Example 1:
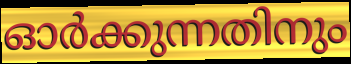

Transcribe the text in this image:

ഓർക്കുന്നതിനും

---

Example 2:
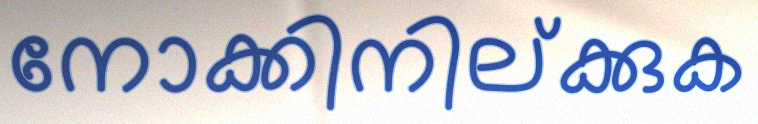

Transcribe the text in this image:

നോക്കിനില്ക്കുക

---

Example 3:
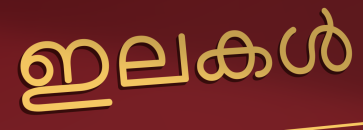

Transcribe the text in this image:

ഇലകൾ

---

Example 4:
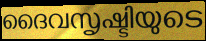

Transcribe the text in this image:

ദൈവസൃഷ്ടിയുടെ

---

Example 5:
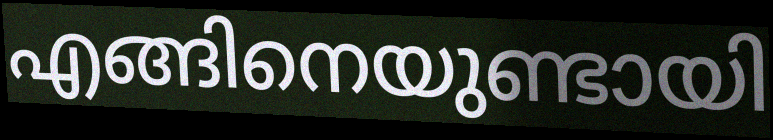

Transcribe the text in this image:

എങ്ങിനെയുണ്ടായി